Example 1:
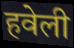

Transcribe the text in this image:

हवेली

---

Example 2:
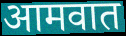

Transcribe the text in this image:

आमवात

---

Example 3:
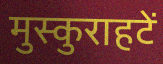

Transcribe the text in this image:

मुस्कुराहटें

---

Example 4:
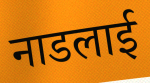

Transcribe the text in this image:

नाडलाई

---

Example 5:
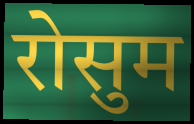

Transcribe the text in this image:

रोसुम